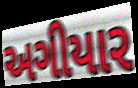
અગીયાર